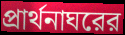
প্রার্থনাঘরের